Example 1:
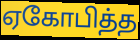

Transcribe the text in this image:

ஏகோபித்த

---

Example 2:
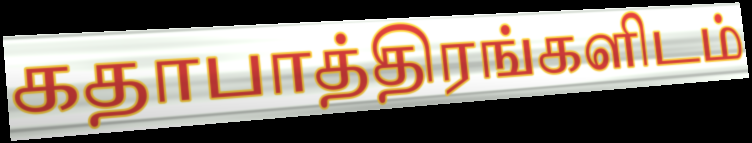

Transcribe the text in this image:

கதாபாத்திரங்களிடம்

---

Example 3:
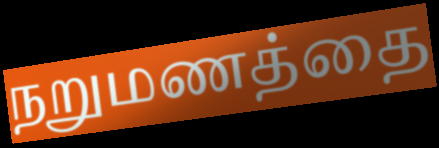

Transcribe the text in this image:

நறுமணத்தை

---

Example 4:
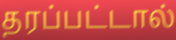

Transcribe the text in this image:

தரப்பட்டால்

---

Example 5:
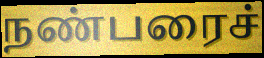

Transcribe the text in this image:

நண்பரைச்